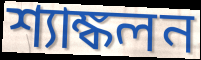
শ্যাঙ্কলন